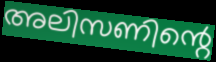
അലിസണിന്റെ